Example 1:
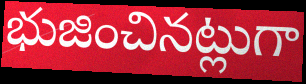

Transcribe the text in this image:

భుజించినట్లుగా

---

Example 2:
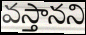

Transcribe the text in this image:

వస్తానని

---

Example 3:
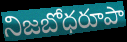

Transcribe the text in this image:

నిజబోధరూపా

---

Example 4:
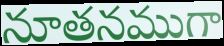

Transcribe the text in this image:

నూతనముగా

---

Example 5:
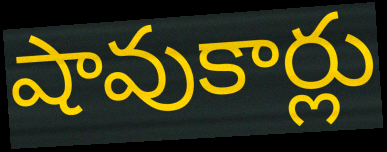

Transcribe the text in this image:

షావుకార్లు